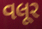
વલૂર